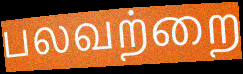
பலவற்றை